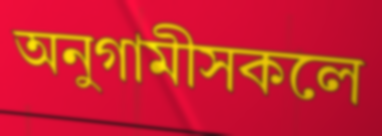
অনুগামীসকলে